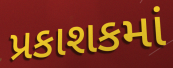
પ્રકાશકમાં